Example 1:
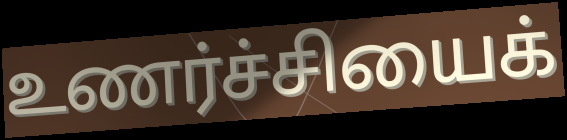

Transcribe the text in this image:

உணர்ச்சியைக்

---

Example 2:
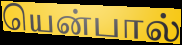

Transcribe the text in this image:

யென்பால்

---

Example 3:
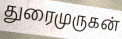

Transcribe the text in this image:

துரைமுருகன்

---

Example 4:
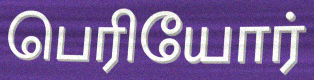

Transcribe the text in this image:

பெரியோர்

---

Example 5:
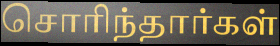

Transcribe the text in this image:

சொரிந்தார்கள்